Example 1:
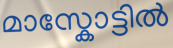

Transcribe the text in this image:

മാസ്കോട്ടിൽ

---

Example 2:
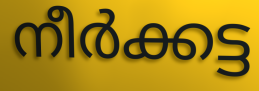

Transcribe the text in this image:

നീർക്കട്ട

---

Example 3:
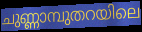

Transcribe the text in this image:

ചുണ്ണാമ്പുതറയിലെ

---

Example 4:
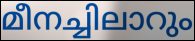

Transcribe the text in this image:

മീനച്ചിലാറും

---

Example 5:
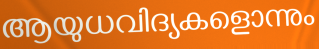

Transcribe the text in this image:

ആയുധവിദ്യകളൊന്നും